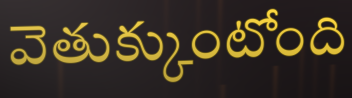
వెతుక్కుంటోంది